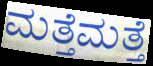
ಮತ್ತೆಮತ್ತೆ